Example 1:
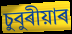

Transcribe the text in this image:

চুবুৰীয়াৰ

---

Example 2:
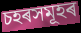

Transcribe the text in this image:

চহৰসমূহৰ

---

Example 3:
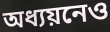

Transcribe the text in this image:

অধ্যয়নেও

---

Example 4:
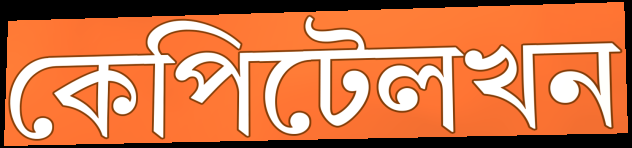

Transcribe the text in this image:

কেপিটেলখন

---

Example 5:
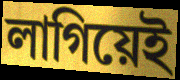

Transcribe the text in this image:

লাগিয়েই